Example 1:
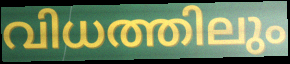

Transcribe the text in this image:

വിധത്തിലും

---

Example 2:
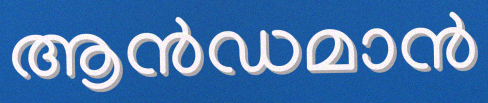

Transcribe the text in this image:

ആൻഡമാൻ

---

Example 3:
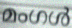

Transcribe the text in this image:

മംഗൾ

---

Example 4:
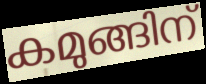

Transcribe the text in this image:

കമുങ്ങിന്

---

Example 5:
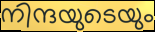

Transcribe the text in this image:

നിന്ദയുടെയും